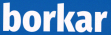
borkar